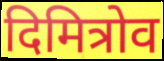
दिमित्रोव